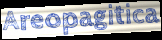
Areopagitica